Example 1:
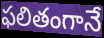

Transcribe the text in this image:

ఫలితంగానే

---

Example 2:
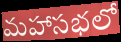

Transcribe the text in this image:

మహాసభలో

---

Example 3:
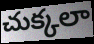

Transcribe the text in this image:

చుక్కలా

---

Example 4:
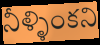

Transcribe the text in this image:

నీళ్ళింకని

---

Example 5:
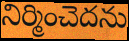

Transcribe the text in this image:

నిర్మించెదను